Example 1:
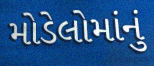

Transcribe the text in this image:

મોડેલોમાંનું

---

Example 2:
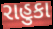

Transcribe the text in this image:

રાહુકા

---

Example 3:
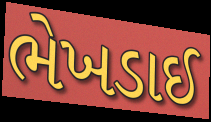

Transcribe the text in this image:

ભેખડાઈ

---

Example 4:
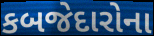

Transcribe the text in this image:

કબજેદારોના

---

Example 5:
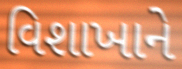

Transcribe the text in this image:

વિશાખાને